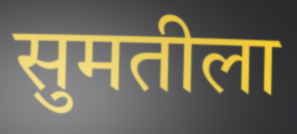
सुमतीला